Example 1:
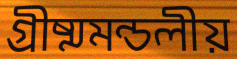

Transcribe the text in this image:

গ্রীষ্মমন্ডলীয়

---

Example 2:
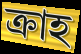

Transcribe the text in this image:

ক্রাহ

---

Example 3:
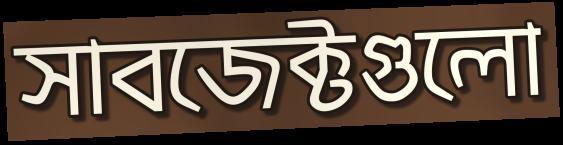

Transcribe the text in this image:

সাবজেক্টগুলো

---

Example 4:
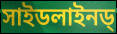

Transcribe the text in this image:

সাইডলাইনড্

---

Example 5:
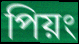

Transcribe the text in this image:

পিয়ং